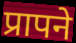
प्रापने